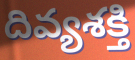
దివ్యశక్తి